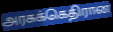
அரசுக்கெதிரான